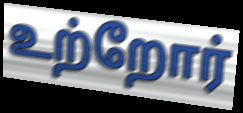
உற்றோர்